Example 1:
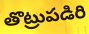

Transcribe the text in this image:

తొట్రుపడిరి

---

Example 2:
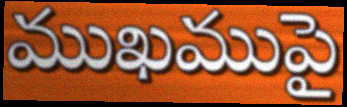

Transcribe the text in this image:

ముఖముపై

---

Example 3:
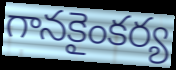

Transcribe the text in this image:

గానకైంకర్య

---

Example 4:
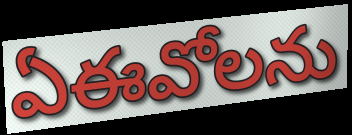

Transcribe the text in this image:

ఏఈవోలను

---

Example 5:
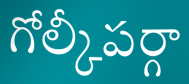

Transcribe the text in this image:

గోల్కీపర్గా